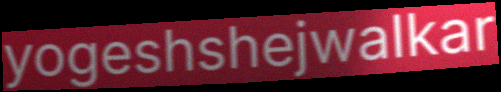
yogeshshejwalkar